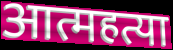
आत्महत्या